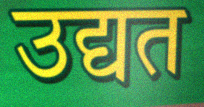
उद्यत